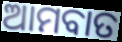
ଆମବାତ